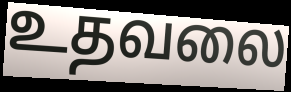
உதவலை